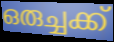
ഒരുച്ചക്ക്